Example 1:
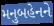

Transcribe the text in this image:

મનુબહેનને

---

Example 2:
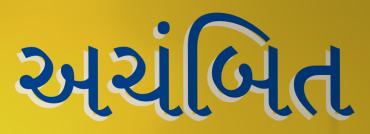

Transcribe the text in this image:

અચંબિત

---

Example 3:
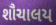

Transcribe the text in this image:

શૌચાલય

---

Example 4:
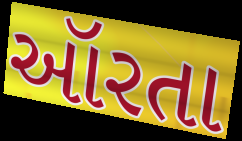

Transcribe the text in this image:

ઑરતા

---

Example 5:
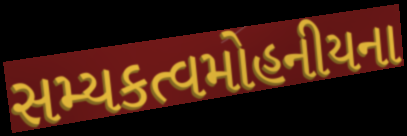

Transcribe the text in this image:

સમ્યકત્વમોહનીયના